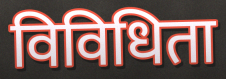
विविधिता